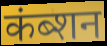
कंब्शन